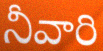
నీవారి